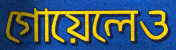
গোয়েলেও